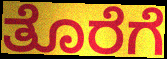
ತೊರೆಗೆ